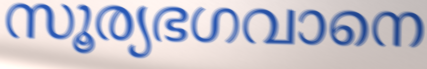
സൂര്യഭഗവാനെ